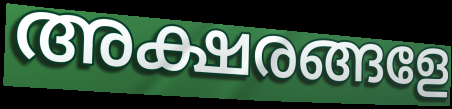
അക്ഷരങ്ങളേ